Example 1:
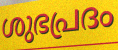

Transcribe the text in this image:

ശുഭപ്രദം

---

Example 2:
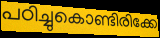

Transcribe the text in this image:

പഠിച്ചുകൊണ്ടിരിക്കേ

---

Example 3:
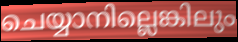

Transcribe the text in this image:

ചെയ്യാനില്ലെങ്കിലും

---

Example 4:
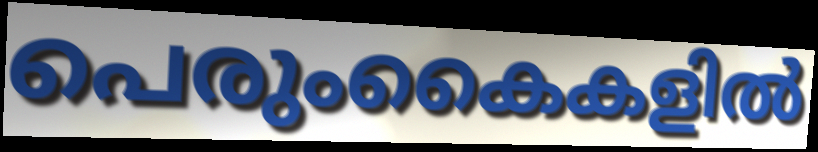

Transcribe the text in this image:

പെരുംകൈകളിൽ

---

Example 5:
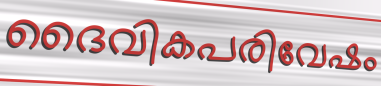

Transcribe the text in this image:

ദൈവികപരിവേഷം